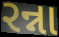
રન્ના